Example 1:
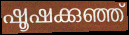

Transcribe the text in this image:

ഷൂഷക്കുഞ്ഞ്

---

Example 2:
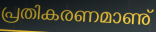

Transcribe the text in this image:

പ്രതികരണമാണു്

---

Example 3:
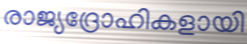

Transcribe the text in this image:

രാജ്യദ്രോഹികളായി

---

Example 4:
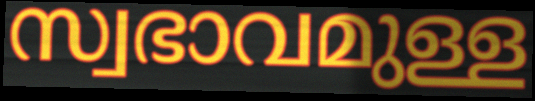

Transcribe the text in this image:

സ്വഭാവമുള്ള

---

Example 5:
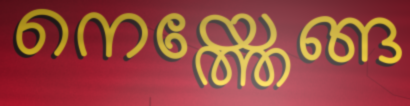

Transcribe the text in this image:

നെയ്ത്തേങ്ങ